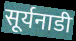
सूर्यनाडी